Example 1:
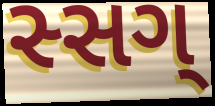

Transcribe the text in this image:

સ્સગ્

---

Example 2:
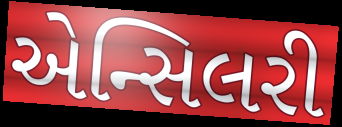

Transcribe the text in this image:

એન્સિલરી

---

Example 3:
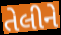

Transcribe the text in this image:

તેલીને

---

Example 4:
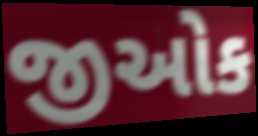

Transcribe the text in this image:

જીઓક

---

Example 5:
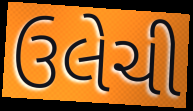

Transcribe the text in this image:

ઉલેચી